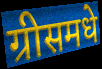
ग्रीसमधे